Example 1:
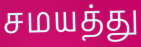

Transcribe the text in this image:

சமயத்து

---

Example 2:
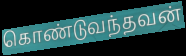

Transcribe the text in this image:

கொண்டுவந்தவன்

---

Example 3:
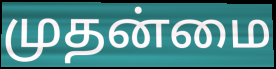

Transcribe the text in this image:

முதன்மை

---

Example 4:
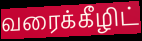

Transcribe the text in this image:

வரைக்கீழிட்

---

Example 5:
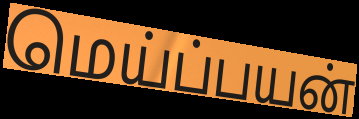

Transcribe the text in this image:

மெய்ப்பயன்